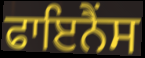
ਫਾਇਨੈਂਸ